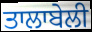
ਤਾਲਾਬੇਲੀ